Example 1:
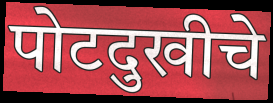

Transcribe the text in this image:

पोटदुखीचे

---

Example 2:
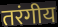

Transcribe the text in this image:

तरंगीय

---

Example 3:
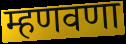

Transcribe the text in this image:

म्हणवणा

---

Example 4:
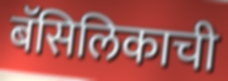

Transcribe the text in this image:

बॅसिलिकाची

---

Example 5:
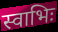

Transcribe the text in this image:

स्वाभिः